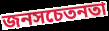
জনসচেতনতা